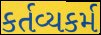
કર્તવ્યકર્મ